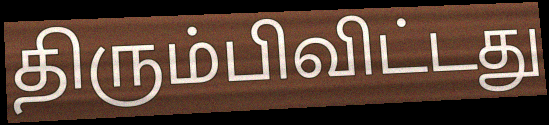
திரும்பிவிட்டது